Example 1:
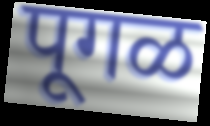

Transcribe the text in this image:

पूगळ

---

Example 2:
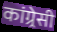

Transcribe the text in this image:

कांग्र्रेसी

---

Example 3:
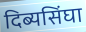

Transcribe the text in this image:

दिब्यसिंघा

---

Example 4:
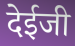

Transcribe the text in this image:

देईजी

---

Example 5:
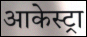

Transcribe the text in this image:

आकेस्ट्रा